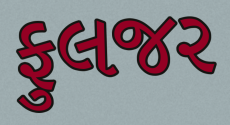
ફુલજર